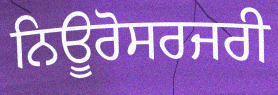
ਨਿਊਰੋਸਰਜਰੀ